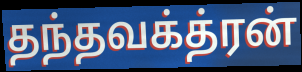
தந்தவக்த்ரன்